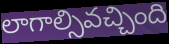
లాగాల్సివచ్చింది